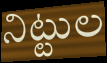
నిట్టుల